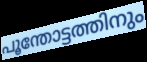
പൂന്തോട്ടത്തിനും